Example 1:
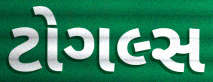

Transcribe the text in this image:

ટોગલ્સ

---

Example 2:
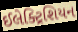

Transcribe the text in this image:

ઈલેક્ટ્રિશિયન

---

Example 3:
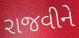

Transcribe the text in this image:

રાજવીને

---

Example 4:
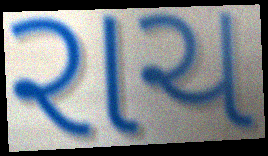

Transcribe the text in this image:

રાચ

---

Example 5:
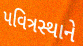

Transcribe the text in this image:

પવિત્રસ્થાને